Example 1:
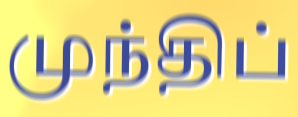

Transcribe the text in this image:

முந்திப்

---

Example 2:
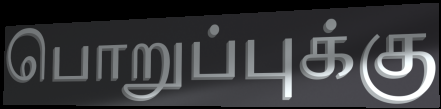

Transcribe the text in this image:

பொறுப்புக்கு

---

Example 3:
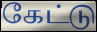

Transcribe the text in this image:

கேட்டு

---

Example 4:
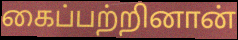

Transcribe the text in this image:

கைப்பற்றினான்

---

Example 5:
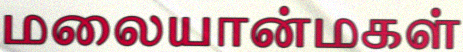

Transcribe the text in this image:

மலையான்மகள்